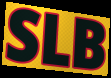
SLB